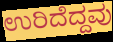
ಉರಿದೆದ್ದವು